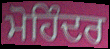
ਮੋਹਿੰਦਰ